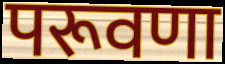
परूवणा